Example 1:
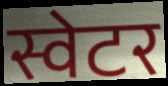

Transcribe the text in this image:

स्वेटर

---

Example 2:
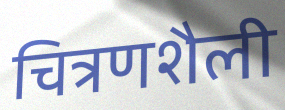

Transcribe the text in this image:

चित्रणशैली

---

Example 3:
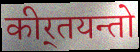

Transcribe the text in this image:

कीर्तयन्तो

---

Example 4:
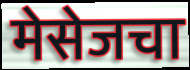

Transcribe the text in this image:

मेसेजचा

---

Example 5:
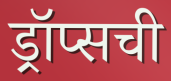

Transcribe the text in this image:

ड्रॉप्सची